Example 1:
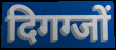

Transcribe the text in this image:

दिगग्जों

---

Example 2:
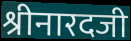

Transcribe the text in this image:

श्रीनारदजी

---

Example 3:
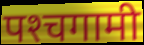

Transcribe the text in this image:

पश्चगामी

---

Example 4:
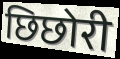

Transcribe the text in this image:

छिछोरी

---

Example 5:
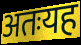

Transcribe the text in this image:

अतःयह